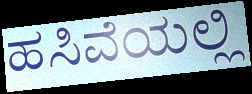
ಹಸಿವೆಯಲ್ಲಿ